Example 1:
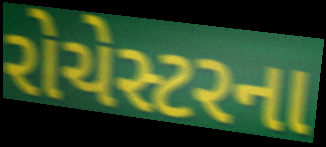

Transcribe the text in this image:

રોચેસ્ટરના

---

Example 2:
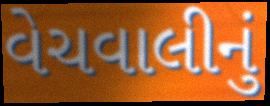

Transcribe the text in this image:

વેચવાલીનું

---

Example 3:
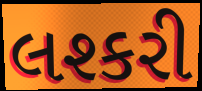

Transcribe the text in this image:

લશ્કરી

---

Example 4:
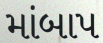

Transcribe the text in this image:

માંબાપ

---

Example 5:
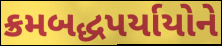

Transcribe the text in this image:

ક્રમબદ્ધપર્યાયોને